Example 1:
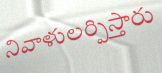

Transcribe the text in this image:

నివాళులర్పిస్తారు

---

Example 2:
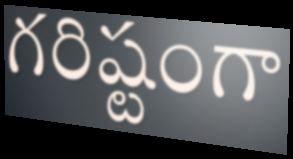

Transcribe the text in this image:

గరిష్టంగా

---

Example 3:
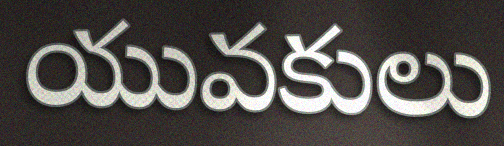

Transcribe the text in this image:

యువకులు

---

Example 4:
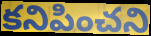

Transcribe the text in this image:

కనిపించని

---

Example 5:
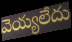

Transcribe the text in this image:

వెయ్యలేదు